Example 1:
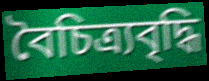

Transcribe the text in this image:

বৈচিত্র্যবৃদ্ধি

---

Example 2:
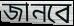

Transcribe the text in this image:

জানবে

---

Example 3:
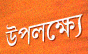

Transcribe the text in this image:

উপলক্ষ্যে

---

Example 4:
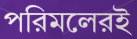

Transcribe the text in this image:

পরিমলেরই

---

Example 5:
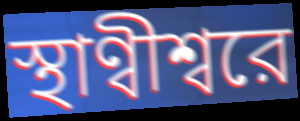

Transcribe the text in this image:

স্থাণ্বীশ্বরে